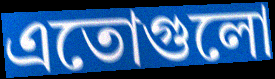
এতোগুলো